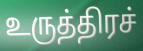
உருத்திரச்